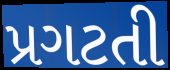
પ્રગટતી